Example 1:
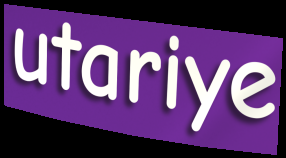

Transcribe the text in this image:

utariye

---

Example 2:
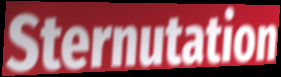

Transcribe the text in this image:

Sternutation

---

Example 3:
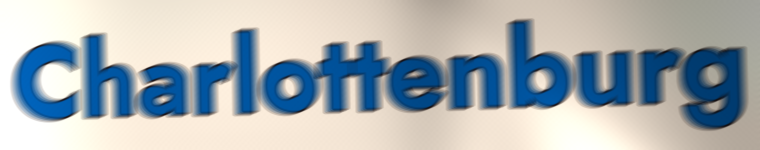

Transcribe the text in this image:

Charlottenburg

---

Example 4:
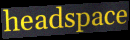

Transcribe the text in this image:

headspace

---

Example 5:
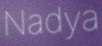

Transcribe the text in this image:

Nadya